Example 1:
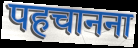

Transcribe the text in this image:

पहचानना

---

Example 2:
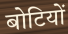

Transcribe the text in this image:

बोटियों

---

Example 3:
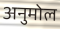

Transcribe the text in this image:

अनुमोल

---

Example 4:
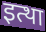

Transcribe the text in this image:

इत्था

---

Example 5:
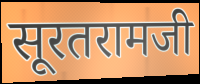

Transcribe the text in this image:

सूरतरामजी